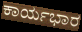
ಕಾರ್ಯಭಾರ